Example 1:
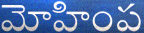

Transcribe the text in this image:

మోహింప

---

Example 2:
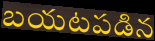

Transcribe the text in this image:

బయటపడిన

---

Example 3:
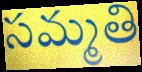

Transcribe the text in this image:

సమ్మతి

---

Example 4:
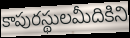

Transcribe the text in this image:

కాపురస్థులమీదికిని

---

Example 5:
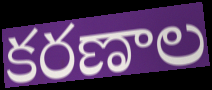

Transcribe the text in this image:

కరణాల